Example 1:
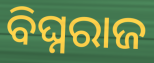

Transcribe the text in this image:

ବିଘ୍ନରାଜ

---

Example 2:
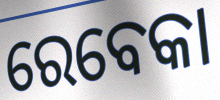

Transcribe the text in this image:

ରେବେକା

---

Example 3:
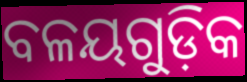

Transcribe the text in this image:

ବଳୟଗୁଡ଼ିକ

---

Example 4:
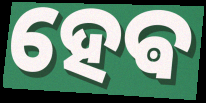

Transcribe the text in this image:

ହେଵ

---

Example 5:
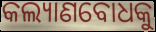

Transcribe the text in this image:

କଲ୍ୟାଣବୋଧକୁ